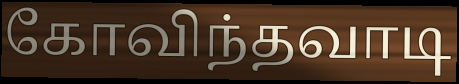
கோவிந்தவாடி